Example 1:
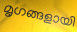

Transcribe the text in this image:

മൃഗങ്ങളായി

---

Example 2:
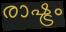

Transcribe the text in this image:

രാഷ്ട്രം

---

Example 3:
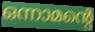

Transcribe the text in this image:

ഒന്നാമന്റെ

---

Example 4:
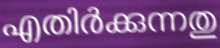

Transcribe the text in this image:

എതിർക്കുന്നതു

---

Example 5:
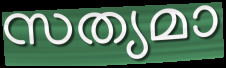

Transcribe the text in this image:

സത്യമാ